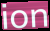
ion